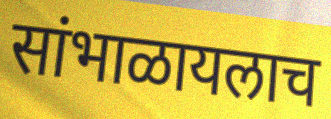
सांभाळायलाच